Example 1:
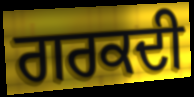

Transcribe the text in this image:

ਗਰਕਦੀ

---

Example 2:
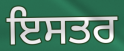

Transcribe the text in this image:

ਇਸਤਰ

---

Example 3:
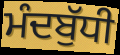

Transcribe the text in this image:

ਮੰਦਬੁੱਧੀ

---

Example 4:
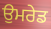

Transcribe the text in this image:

ਉਮਰੇਡ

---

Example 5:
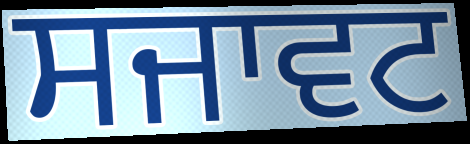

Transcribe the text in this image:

ਸਜਾਵਟ